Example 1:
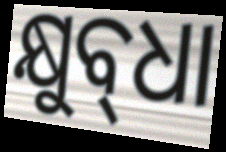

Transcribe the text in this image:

କ୍ଷୁବ୍‌ଧା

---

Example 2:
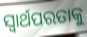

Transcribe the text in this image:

ସ୍ଵାର୍ଥପରତାକୁ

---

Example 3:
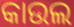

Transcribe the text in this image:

କାଉଲ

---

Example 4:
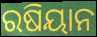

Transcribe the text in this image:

ରଷିୟାନ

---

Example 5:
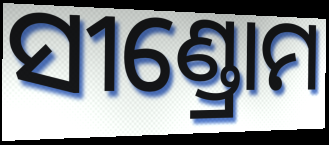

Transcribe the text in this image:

ସୀଣ୍ଡ୍ରୋମ